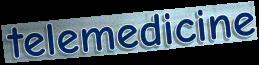
telemedicine